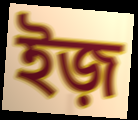
ইজ়